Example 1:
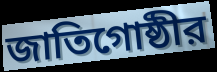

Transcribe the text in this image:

জাতিগোষ্ঠীর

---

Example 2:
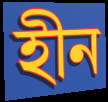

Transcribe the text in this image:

হীন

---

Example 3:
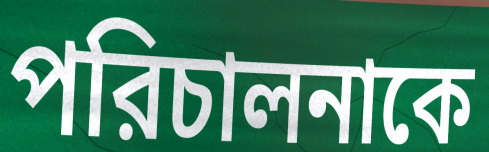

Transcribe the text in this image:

পরিচালনাকে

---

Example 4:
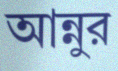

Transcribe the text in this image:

আন্নুর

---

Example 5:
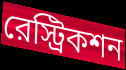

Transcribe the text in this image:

রেস্ট্রিকশন